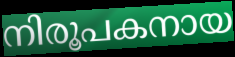
നിരൂപകനായ